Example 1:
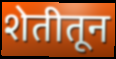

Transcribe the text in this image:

शेतीतून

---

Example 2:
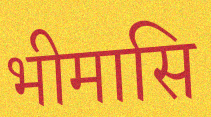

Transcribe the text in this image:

भीमासि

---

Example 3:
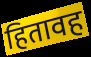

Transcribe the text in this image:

हितावह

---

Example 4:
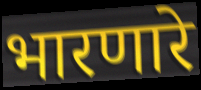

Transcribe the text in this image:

भारणारे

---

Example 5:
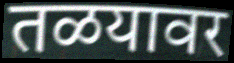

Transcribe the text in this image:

तळयावर